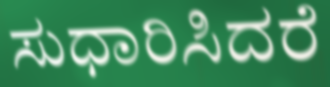
ಸುಧಾರಿಸಿದರೆ